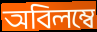
অবিলম্বে